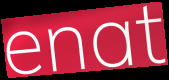
enat